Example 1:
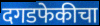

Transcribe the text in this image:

दगडफेकीचा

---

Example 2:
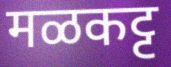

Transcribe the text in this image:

मळकट्ट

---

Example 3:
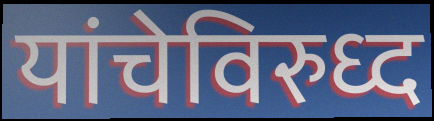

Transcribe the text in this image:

यांचेविरुध्द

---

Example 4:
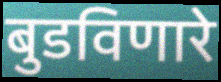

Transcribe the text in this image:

बुडविणारे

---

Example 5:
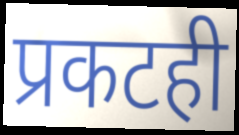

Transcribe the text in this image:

प्रकटही